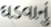
ઘડવાનું